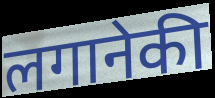
लगानेकी